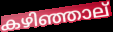
കഴിഞ്ഞാല്